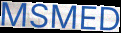
MSMED